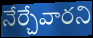
నేర్చేవారని